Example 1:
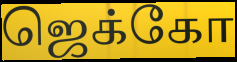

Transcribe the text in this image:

ஜெக்கோ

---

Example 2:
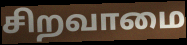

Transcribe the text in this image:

சிறவாமை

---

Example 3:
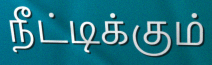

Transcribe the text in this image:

நீட்டிக்கும்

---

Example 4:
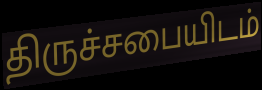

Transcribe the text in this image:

திருச்சபையிடம்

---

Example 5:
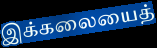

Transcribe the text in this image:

இக்கலையைத்